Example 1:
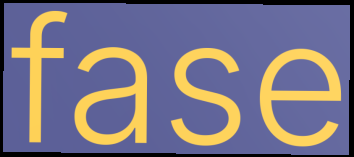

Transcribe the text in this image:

fase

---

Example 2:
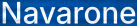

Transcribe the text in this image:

Navarone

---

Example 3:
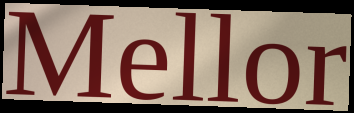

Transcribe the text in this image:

Mellor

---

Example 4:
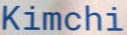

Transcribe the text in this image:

Kimchi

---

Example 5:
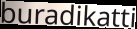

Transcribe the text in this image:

buradikatti